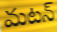
మటన్